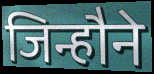
जिन्हौने